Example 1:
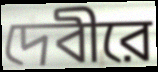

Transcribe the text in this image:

দেবীরে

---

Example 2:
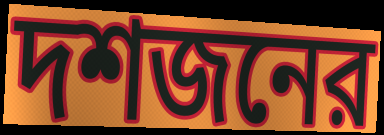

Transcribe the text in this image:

দশজনের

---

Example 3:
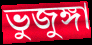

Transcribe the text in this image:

ভুজুঙ্গা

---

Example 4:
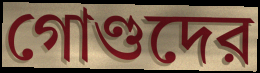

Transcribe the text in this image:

গোণ্ডদের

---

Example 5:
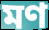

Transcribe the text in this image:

মণ